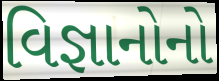
વિજ્ઞાનોનો